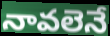
నావలెనే